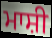
ਮਾਸ਼ੀ